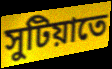
সুটিয়াতে